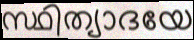
സ്ഥിത്യാദയേ